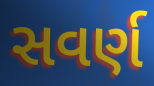
સવર્ણ